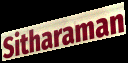
Sitharaman